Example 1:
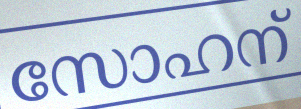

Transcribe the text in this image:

സോഹന്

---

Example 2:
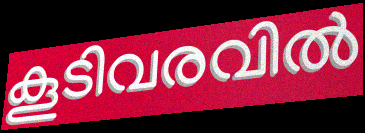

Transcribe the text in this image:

കൂടിവരവിൽ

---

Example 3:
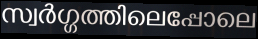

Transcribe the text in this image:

സ്വർഗ്ഗത്തിലെപ്പോലെ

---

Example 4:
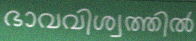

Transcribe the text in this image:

ഭാവവിശ്വത്തിൽ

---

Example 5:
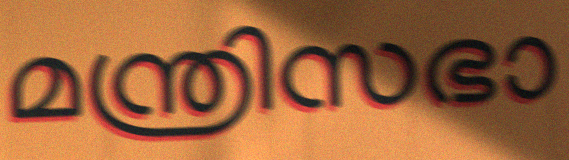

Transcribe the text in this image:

മന്ത്രിസഭാ